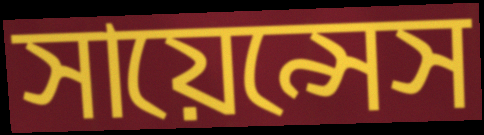
সায়েন্সেস